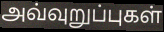
அவ்வுறுப்புகள்